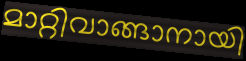
മാറ്റിവാങ്ങാനായി